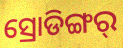
ସ୍ରୋଡିଙ୍ଗର୍